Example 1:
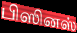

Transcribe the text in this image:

பிஸினஸ்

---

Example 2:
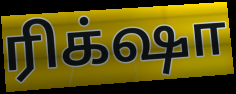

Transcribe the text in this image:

ரிக்‌ஷா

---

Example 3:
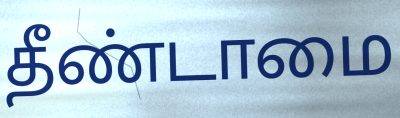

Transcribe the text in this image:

தீண்டாமை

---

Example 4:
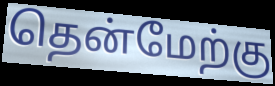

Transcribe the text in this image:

தென்மேற்கு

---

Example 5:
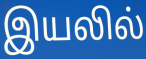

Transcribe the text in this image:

இயலில்